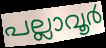
പല്ലാവൂർ